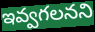
ఇవ్వగలనని